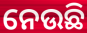
ନେଉଛି